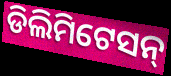
ଡିଲିମିଟେସନ୍